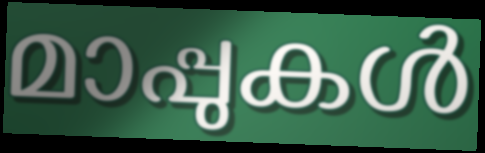
മാപ്പുകൾ